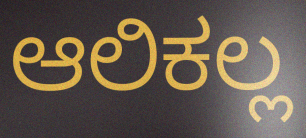
ಆಲಿಕಲ್ಲ